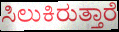
ಸಿಲುಕಿರುತ್ತಾರೆ